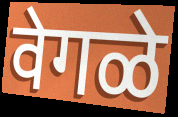
वेगळे